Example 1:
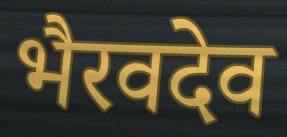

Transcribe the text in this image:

भैरवदेव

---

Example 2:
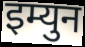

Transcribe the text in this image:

इम्‍युन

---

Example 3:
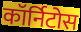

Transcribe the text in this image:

कॉर्निटोस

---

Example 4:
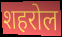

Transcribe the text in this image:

शहरोल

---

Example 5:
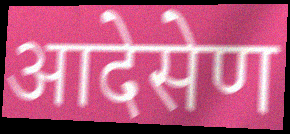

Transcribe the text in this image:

आदेसेण